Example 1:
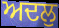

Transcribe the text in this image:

ਅਦਲੁ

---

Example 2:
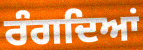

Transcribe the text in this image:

ਰੰਗਦਿਆਂ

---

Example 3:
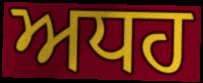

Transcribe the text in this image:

ਅਧਹ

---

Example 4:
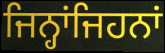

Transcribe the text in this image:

ਜਿਨ੍ਹਾਂਜਿਹਨਾਂ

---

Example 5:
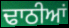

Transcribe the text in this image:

ਢਾਠੀਆਂ